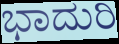
ಭಾದುರಿ